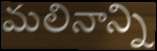
మలినాన్ని